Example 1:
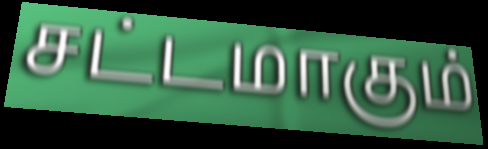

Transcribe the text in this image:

சட்டமாகும்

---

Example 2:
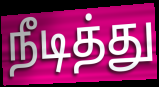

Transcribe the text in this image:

நீடித்து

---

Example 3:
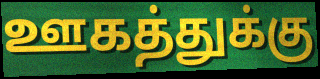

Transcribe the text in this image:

ஊகத்துக்கு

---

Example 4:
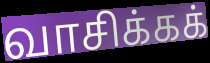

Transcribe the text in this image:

வாசிக்கக்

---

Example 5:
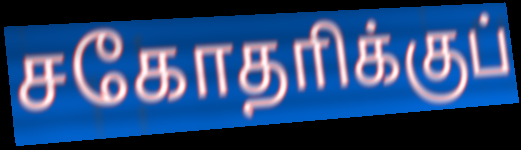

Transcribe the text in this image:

சகோதரிக்குப்